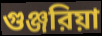
গুঞ্জরিয়া